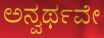
ಅನ್ವರ್ಥವೇ